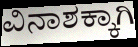
ವಿನಾಶಕ್ಕಾಗಿ